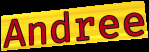
Andree